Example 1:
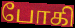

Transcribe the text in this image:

போகி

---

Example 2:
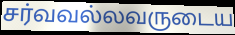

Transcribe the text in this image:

சர்வவல்லவருடைய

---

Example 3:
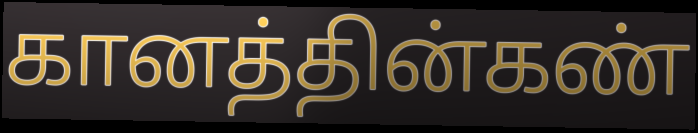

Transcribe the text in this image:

கானத்தின்கண்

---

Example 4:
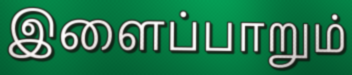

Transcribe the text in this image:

இளைப்பாறும்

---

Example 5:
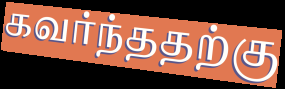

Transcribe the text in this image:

கவர்ந்ததற்கு